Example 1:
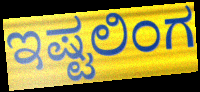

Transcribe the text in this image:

ಇಷ್ಟಲಿಂಗ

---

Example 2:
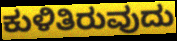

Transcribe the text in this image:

ಕುಳಿತಿರುವುದು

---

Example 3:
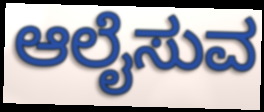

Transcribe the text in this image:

ಆಲೈಸುವ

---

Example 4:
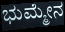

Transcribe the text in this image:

ಭುಮ್ಮೇನ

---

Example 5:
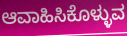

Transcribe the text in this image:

ಆವಾಹಿಸಿಕೊಳ್ಳುವ